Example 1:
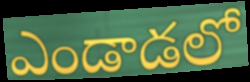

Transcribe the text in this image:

ఎండాడలో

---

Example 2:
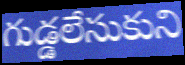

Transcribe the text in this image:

గుడ్డలేసుకుని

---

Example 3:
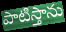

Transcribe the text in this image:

పాటిస్తాను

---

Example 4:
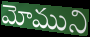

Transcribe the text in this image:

మోముని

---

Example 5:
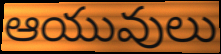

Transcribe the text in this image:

ఆయువులు